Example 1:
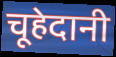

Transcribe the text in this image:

चूहेदानी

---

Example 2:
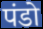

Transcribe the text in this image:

पंडो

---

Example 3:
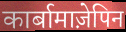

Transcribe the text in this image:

कार्बामाज़ेपिन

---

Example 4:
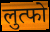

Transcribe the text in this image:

लुत्फो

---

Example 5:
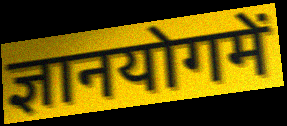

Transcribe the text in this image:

ज्ञानयोगमें